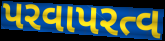
પરવાપરત્વ